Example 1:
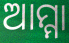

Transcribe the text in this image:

ଆମ୍ମା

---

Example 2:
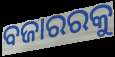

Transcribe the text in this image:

ବଜାରରକୁ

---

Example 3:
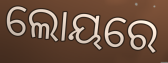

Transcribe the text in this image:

ଲୋୟରେ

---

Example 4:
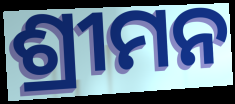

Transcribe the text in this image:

ଶ୍ରୀମନ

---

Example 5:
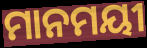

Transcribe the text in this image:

ମାନମୟୀ